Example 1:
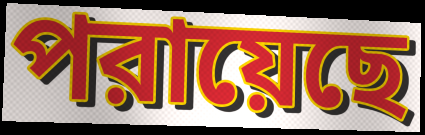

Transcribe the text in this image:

পরায়েছে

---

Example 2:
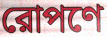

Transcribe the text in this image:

রোপণে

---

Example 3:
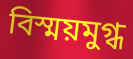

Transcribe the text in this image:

বিস্ময়মুগ্ধ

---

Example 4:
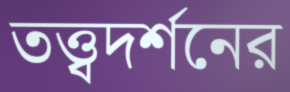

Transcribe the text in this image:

তত্ত্বদর্শনের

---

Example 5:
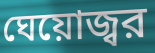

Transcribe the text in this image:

ঘেয়োজ্বর